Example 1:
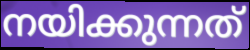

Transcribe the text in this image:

നയിക്കുന്നത്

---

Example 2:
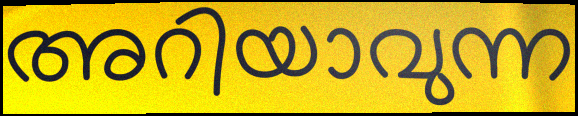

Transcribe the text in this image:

അറിയാവുന്ന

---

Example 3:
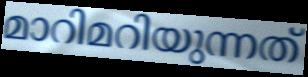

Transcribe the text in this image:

മാറിമറിയുന്നത്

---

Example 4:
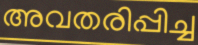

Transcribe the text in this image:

അവതരിപ്പിച്ച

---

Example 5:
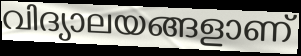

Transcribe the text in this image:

വിദ്യാലയങ്ങളാണ്